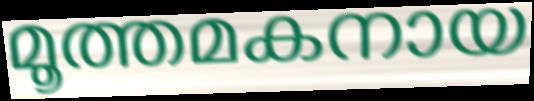
മൂത്തമകനായ